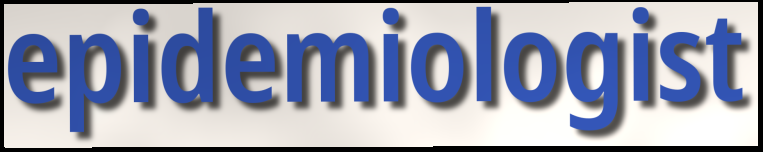
epidemiologist